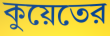
কুয়েতের